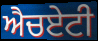
ਐਚਏਟੀ